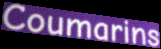
Coumarins